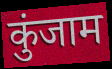
कुंजाम